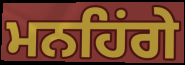
ਮਨਹਿਂਗੇ